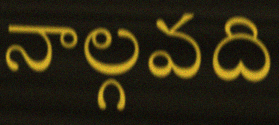
నాల్గవది